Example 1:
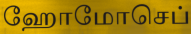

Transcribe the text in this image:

ஹோமோசெப்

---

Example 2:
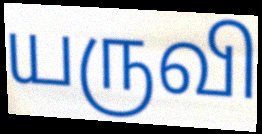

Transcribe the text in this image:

யருவி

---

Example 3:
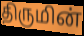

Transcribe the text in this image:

திருமின்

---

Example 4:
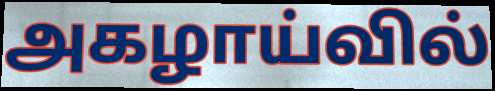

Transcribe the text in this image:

அகழாய்வில்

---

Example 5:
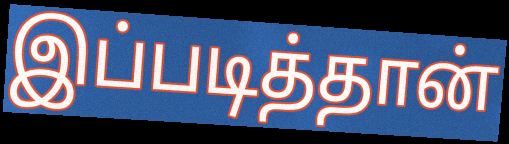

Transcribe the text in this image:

இப்படித்தான்